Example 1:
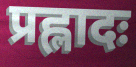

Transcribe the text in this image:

प्रह्लादः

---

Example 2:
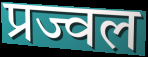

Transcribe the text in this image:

प्रज्वल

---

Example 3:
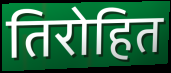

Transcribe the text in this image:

तिरोहित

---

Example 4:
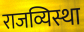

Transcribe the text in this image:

राजव्यिस्था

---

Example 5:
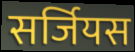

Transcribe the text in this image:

सर्जियस